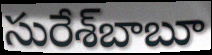
సురేశ్‌బాబూ